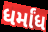
ધર્માંધ